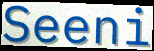
Seeni